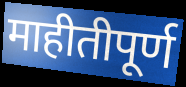
माहीतीपूर्ण